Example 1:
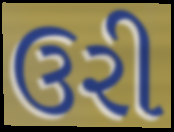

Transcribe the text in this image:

ઉરી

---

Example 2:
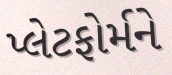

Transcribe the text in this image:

પ્લેટફોર્મને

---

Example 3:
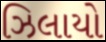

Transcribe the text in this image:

ઝિલાયો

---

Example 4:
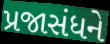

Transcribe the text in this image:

પ્રજાસંધને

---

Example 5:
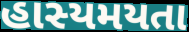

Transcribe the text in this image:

હાસ્યમયતા